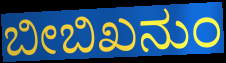
ಬೀಬಿಖನುಂ